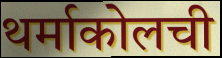
थर्माकोलची